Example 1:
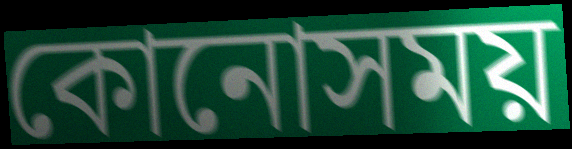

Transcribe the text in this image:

কোনোসময়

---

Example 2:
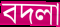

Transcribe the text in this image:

বদলা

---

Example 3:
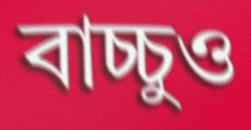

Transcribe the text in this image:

বাচ্চুও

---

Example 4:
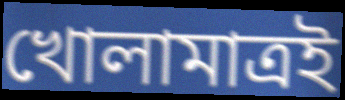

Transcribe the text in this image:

খোলামাত্রই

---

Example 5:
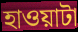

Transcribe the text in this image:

হাওয়াটা